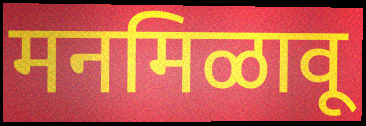
मनमिळावू